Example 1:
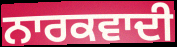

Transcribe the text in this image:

ਨਾਰਕਵਾਦੀ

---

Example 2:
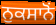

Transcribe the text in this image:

ਨੁਕਸਾਨੋਂ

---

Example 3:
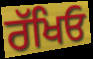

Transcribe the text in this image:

ਰੱਖਿਓ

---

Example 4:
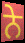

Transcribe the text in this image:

ਨੇ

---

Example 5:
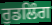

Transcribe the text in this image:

ਰੁਡਲਿੰਗ